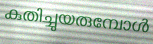
കുതിച്ചുയരുമ്പോൾ